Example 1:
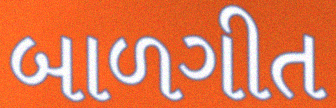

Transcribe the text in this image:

બાળગીત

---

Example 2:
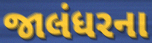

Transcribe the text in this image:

જાલંધરના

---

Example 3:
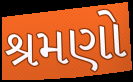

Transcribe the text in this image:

શ્રમણો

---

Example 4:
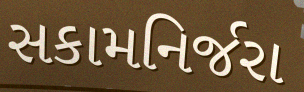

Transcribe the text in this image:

સકામનિર્જરા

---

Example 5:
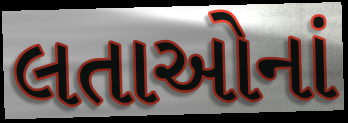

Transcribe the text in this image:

લતાઓનાં